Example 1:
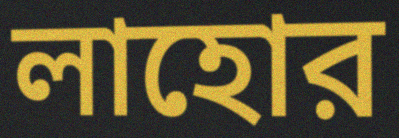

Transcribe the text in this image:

লাহোর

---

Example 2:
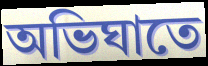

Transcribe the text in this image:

অভিঘাতে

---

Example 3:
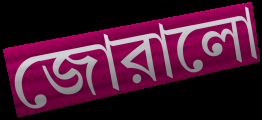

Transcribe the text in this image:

জোরালো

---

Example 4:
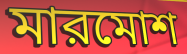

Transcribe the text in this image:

মারমোশ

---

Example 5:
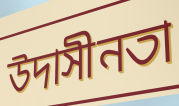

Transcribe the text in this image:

উদাসীনতা